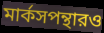
মার্কসপন্থারও